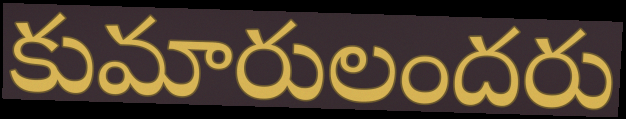
కుమారులందరు